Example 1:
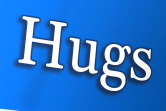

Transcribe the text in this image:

Hugs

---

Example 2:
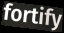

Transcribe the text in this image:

fortify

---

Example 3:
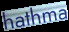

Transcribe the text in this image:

hathma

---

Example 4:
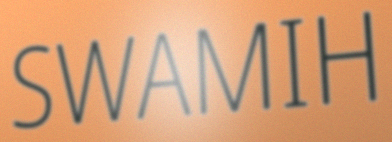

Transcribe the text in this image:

SWAMIH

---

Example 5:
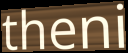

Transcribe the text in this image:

theni